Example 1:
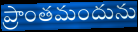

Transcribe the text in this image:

ప్రాంతమందును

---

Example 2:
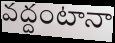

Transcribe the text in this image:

వద్దంటానా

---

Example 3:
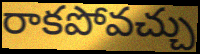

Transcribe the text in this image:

రాకపోవచ్చు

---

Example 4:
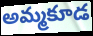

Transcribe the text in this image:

అమ్మకూడ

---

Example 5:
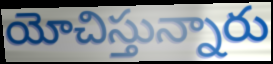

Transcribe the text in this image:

యోచిస్తున్నారు